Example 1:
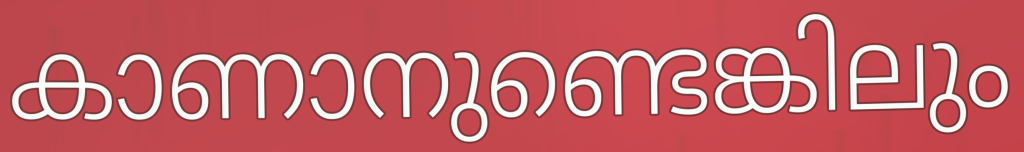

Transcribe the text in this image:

കാണാനുണ്ടെങ്കിലും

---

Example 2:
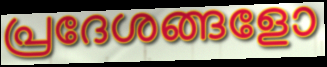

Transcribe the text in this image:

പ്രദേശങ്ങളോ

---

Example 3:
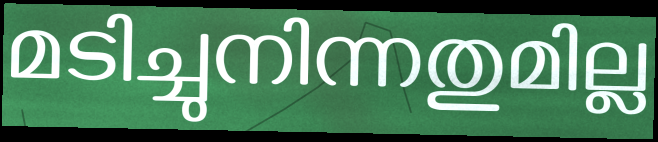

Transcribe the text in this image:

മടിച്ചുനിന്നതുമില്ല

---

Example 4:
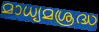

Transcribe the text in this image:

മാധ്യമശ്രദ്ധ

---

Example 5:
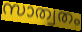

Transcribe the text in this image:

സാത്വതം